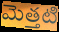
మెత్తటి